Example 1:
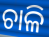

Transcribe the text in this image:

ଚାଳି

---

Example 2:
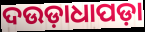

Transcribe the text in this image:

ଦଉଡ଼ାଧାପଡ଼ା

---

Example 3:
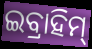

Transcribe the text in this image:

ଇବ୍ରାହିମ୍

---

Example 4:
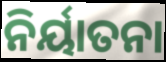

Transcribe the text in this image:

ନିର୍ୟାତନା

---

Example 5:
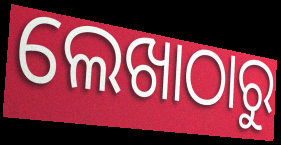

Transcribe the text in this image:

ଲେଖାଠାରୁ